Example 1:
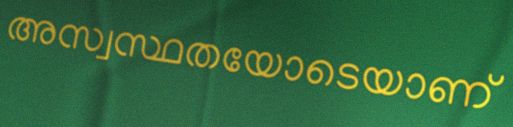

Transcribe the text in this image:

അസ്വസ്ഥതയോടെയാണ്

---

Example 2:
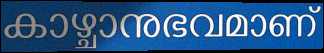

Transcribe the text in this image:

കാഴ്ചാനുഭവമാണ്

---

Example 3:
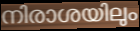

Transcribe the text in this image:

നിരാശയിലും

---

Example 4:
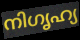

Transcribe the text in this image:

നിഗൃഹ്യ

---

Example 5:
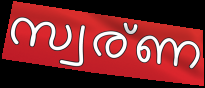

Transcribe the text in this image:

സ്വര്ണ